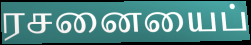
ரசனையைப்